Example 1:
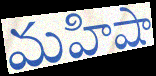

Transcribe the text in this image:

మహిషా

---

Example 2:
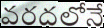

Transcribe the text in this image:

వరదలోనే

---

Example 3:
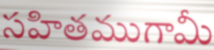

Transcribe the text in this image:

సహితముగామీ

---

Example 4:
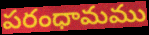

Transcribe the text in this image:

పరంధామము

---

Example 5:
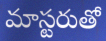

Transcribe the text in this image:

మాస్టరుతో